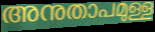
അനുതാപമുള്ള